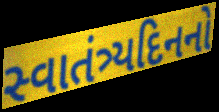
સ્વાતંત્ર્યદિનનો